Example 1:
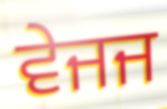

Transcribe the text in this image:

ਵੇਜਜ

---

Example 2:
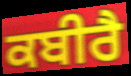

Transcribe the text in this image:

ਕਬੀਰੈ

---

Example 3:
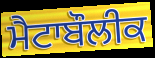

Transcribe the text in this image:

ਮੈਟਾਬੌਲੀਕ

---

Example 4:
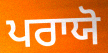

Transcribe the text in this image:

ਪਰਾਯੋ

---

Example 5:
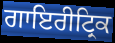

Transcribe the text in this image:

ਗਾਇਰੀਟ੍ਰਿਕ